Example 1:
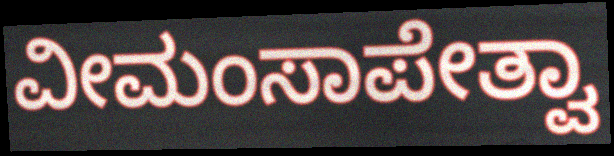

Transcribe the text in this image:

ವೀಮಂಸಾಪೇತ್ವಾ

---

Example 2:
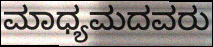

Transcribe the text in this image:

ಮಾಧ್ಯಮದವರು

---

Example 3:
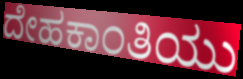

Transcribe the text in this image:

ದೇಹಕಾಂತಿಯು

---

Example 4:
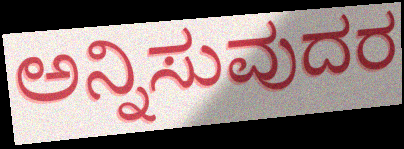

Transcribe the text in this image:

ಅನ್ನಿಸುವುದರ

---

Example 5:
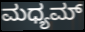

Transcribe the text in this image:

ಮಧ್ಯಮ್